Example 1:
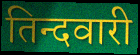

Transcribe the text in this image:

तिन्दवारी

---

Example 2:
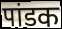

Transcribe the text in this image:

पांडक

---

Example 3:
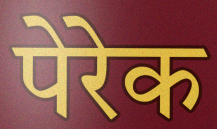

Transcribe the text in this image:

पेरेक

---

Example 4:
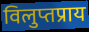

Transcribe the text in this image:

विलुप्तप्राय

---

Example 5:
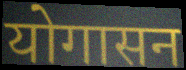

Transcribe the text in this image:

योगासन